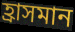
হ্ৰাসমান